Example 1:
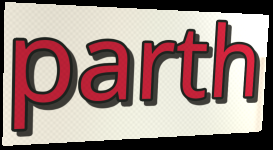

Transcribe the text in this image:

parth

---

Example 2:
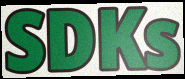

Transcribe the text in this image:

SDKs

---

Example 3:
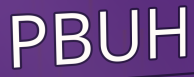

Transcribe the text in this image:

PBUH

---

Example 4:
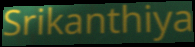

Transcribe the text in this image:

Srikanthiya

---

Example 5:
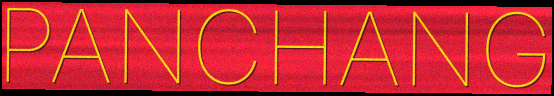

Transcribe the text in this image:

PANCHANG